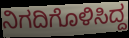
ನಿಗದಿಗೊಳಿಸಿದ್ದ